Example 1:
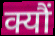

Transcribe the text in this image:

क्यौं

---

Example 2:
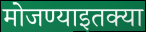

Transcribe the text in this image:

मोजण्याइतक्या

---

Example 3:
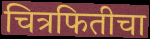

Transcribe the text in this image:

चित्रफितीचा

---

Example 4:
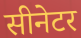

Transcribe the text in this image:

सीनेटर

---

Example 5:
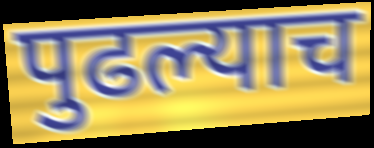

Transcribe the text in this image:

पुढल्याच